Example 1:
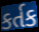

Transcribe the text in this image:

કર્તક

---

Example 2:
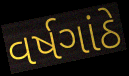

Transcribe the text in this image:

વર્ષગાંઠે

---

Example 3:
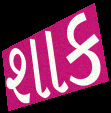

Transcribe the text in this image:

શાક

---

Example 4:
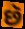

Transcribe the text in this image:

છૅ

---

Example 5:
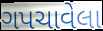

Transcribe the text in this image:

ગપચાવેલા